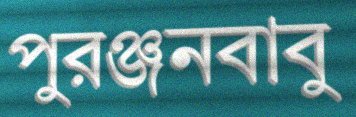
পুরঞ্জনবাবু